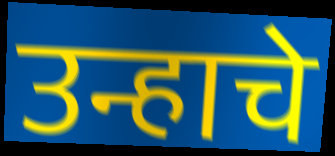
उन्हाचे